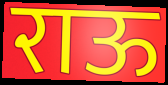
राऊ